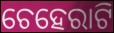
ଚେହେରାଟି